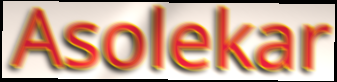
Asolekar